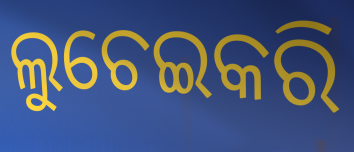
ଲୁଚେଇକରି